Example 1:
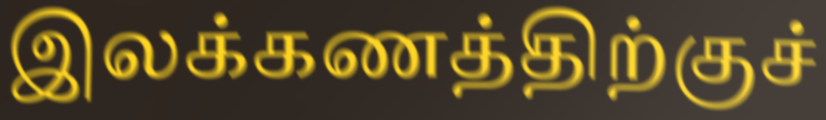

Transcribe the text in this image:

இலக்கணத்திற்குச்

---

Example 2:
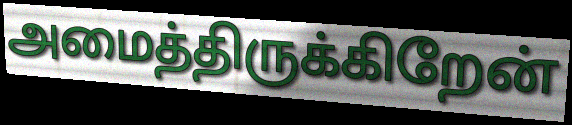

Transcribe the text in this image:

அமைத்திருக்கிறேன்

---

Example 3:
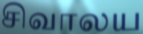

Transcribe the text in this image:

சிவாலய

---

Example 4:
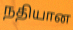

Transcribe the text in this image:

நதியான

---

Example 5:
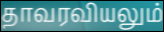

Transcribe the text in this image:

தாவரவியலும்